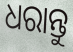
ଧରାନ୍ତୁ